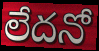
లేదనో